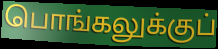
பொங்கலுக்குப்